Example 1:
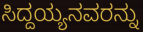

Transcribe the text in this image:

ಸಿದ್ದಯ್ಯನವರನ್ನು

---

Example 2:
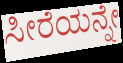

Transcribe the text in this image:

ಸೀರೆಯನ್ನೇ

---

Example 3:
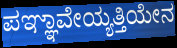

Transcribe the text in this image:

ಪಞ್ಞಾವೇಯ್ಯತ್ತಿಯೇನ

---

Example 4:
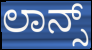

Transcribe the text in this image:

ಲಾನ್ಸ್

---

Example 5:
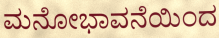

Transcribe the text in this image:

ಮನೋಭಾವನೆಯಿಂದ